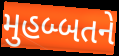
મુહબ્બતને